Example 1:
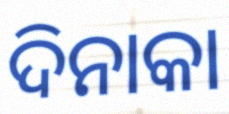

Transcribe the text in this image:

ଦିନାକା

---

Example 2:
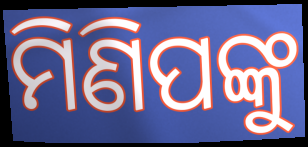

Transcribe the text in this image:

ମିଣିପଙ୍କୁ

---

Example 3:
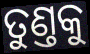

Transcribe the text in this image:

ତୁଣ୍ତକୁ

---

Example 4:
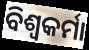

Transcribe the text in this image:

ବିଶ୍ବକର୍ମା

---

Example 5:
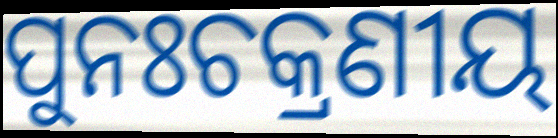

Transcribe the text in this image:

ପୁନଃଚକ୍ରଣୀୟ